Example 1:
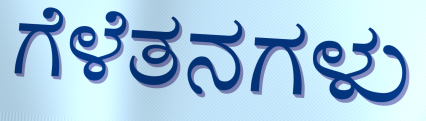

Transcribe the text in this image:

ಗೆಳೆತನಗಳು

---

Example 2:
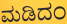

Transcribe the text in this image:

ಮಡಿದಂ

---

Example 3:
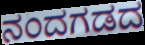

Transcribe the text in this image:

ನಂದಗಡದ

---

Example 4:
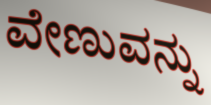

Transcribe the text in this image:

ವೇಣುವನ್ನು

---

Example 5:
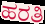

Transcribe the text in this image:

ಹರತಿ